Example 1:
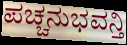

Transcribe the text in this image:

ಪಚ್ಚನುಭವನ್ತಿ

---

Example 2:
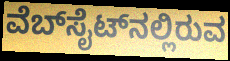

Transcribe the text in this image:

ವೆಬ್‌ಸೈಟ್‌ನಲ್ಲಿರುವ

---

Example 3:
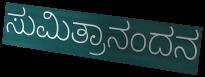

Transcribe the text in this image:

ಸುಮಿತ್ರಾನಂದನ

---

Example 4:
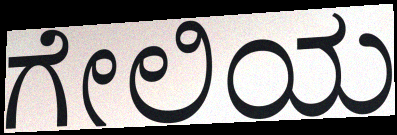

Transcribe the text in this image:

ಗೇಲಿಯ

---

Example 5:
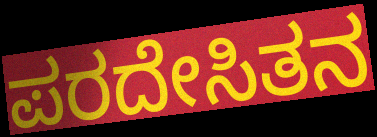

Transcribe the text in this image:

ಪರದೇಸಿತನ